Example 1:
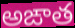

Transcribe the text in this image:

అఙాత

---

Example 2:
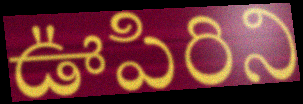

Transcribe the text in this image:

ఊపిరిని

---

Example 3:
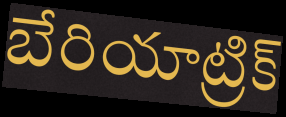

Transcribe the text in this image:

బేరియాట్రిక్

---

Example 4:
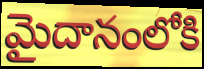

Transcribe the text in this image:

మైదానంలోకి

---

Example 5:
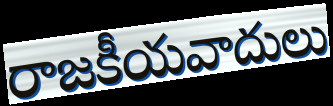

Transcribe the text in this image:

రాజకీయవాదులు